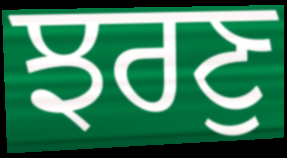
ਝਰਣੁ